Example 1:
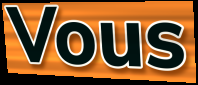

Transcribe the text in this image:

Vous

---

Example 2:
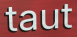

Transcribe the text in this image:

taut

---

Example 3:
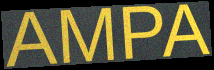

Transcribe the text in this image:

AMPA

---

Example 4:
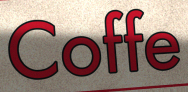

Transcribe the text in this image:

Coffe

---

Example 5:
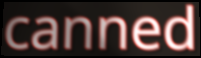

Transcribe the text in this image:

canned